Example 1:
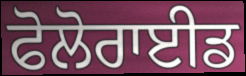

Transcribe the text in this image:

ਫੋਲੋਰਾਈਡ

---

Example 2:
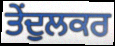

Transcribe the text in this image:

ਤੇਂਦੁਲਕਰ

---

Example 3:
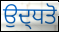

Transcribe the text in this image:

ਉਦ੍ਧਤੋ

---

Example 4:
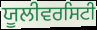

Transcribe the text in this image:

ਯੂਲੀਵਰਸਿਟੀ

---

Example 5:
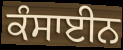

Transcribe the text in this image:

ਕੰਸਾਈਨ